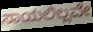
ಸಾಯಲಿಲ್ಲವೇ